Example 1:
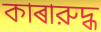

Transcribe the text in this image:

কাৰাৰুদ্ধ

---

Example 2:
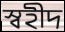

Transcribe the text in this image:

স্বহীদ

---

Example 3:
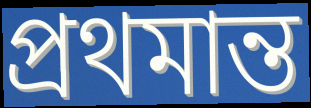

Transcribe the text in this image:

প্ৰথমান্ত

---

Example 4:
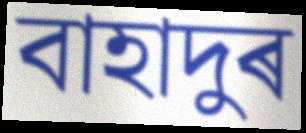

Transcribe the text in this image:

বাহাদুৰ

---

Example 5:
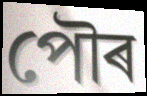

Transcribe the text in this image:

পৌৰ